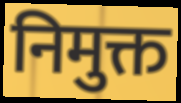
निमुक्त